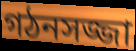
গঠনসজ্জা